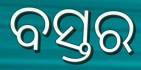
ବସ୍ତର